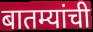
बातम्यांची